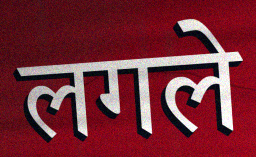
लगले